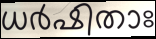
ധർഷിതാഃ